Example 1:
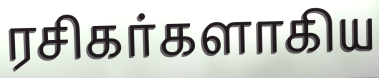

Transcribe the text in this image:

ரசிகர்களாகிய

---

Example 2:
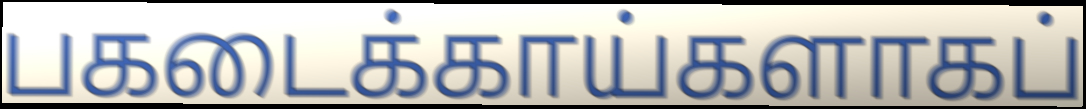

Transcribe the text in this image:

பகடைக்காய்களாகப்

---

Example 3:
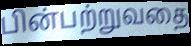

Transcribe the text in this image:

பின்பற்றுவதை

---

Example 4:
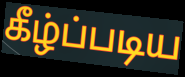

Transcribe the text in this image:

கீழ்ப்படிய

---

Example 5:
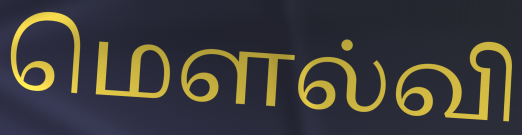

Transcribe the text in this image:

மௌல்வி